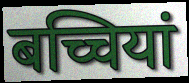
बच्चियां